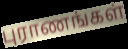
புராணங்கள்